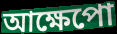
আক্ষেপো